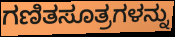
ಗಣಿತಸೂತ್ರಗಳನ್ನು